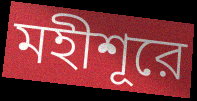
মহীশূরে